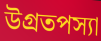
উগ্রতপস্যা